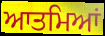
ਆਤਮਿਆਂ